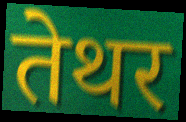
तेथर